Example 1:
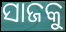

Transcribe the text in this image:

ସାଜକୁ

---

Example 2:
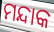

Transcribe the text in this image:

ମନ୍ଦାକ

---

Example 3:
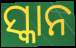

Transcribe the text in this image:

ସ୍କାନ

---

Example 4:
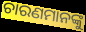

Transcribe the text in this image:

ଚାରଣମାନଙ୍କୁ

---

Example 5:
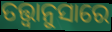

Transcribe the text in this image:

ତତ୍ତ୍ୱାନୁସାରେ